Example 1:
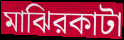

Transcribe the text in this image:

মাঝিরকাটা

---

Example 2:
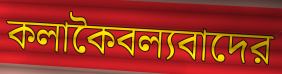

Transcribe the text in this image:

কলাকৈবল্যবাদের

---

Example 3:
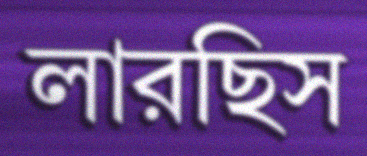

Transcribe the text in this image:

লারছিস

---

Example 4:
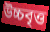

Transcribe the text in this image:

উচ্চবৃত্ত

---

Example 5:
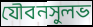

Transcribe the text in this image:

যৌবনসুলভ